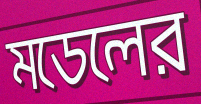
মডেলের